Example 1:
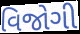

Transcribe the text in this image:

વિજોગી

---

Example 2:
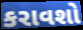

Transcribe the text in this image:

કરાવશો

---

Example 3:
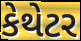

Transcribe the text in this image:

કેથેટર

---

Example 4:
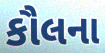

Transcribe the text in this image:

કૌલના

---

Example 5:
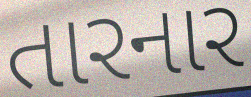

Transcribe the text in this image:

તારનાર